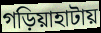
গড়িয়াহাটায়